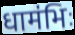
धाम॑भिः